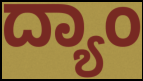
ದ್ಯಾಂ